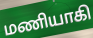
மணியாகி